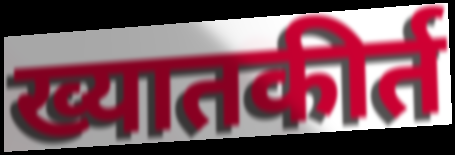
ख्यातकीर्त